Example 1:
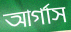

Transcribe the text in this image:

আর্গাস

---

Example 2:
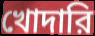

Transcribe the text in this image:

খোদারি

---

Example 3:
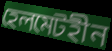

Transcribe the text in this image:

হেলমেটহীন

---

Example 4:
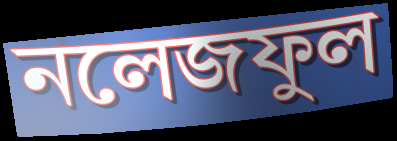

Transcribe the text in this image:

নলেজফুল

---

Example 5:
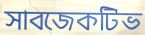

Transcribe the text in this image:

সাবজেকটিভ